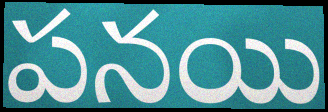
పనయి